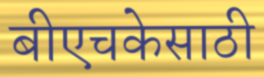
बीएचकेसाठी